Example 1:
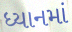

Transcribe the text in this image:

ધ્યાનમાં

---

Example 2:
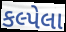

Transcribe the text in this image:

કલ્પેલા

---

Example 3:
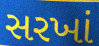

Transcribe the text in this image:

સરખાં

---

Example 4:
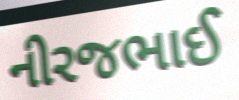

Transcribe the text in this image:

નીરજભાઈ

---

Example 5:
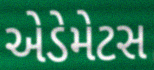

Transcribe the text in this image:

એડેમેટસ